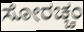
ಸೋರಚ್ಚಂ